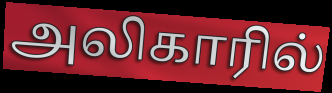
அலிகாரில்